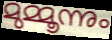
മുമ്മൂന്നും